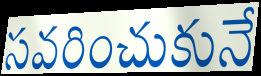
సవరించుకునే